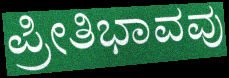
ಪ್ರೀತಿಭಾವವು